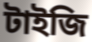
টাইজি